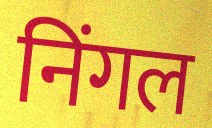
निंगल